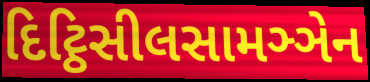
દિટ્ઠિસીલસામઞ્ઞેન